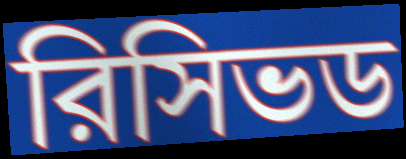
রিসিভড